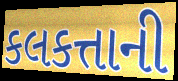
કલકત્તાની